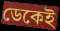
ডেকেই